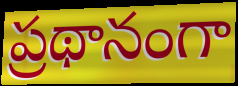
ప్రథానంగా